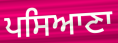
ਪਸਿਆਣਾ